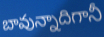
బావున్నాదిగానీ